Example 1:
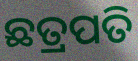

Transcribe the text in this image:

ଛତ୍ରପତି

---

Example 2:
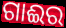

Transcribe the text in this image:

ଗାଈର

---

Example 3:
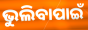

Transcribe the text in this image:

ଭୁଲିବାପାଇଁ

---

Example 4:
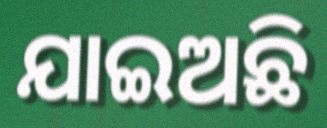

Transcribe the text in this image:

ଯାଇଅଛି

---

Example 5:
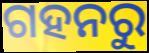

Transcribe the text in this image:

ଗହନରୁ